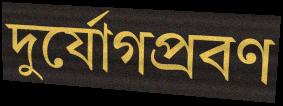
দুর্যোগপ্রবণ